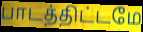
பாடத்திட்டமே